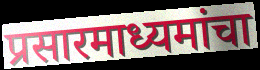
प्रसारमाध्यमांचा